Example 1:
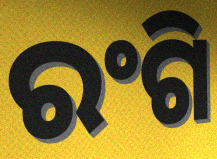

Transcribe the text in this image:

ରଂଗି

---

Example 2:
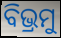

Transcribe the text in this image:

ବିଭ୍ରମୁ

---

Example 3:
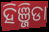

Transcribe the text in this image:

ହିଞ୍ଜିଡା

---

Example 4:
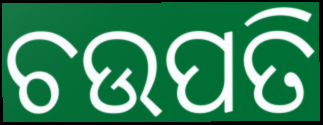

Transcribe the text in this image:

ଚଉପତି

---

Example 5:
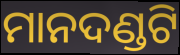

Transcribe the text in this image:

ମାନଦଣ୍ଡଟି